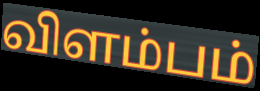
விளம்பம்